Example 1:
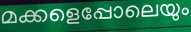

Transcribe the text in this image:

മക്കളെപ്പോലെയും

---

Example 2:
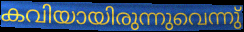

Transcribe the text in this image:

കവിയായിരുന്നുവെന്നു്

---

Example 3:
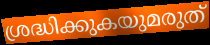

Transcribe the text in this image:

ശ്രദ്ധിക്കുകയുമരുത്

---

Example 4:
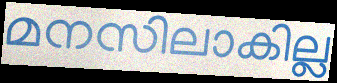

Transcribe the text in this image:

മനസിലാകില്ല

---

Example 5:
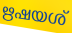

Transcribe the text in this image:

ഋഷയശ്